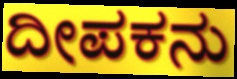
ದೀಪಕನು